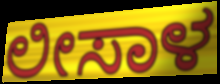
ಲೀಸಾಳ